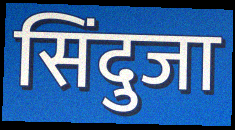
सिंदुजा